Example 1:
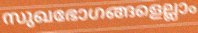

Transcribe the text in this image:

സുഖഭോഗങ്ങളെല്ലാം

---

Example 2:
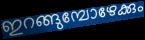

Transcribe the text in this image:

ഇറങ്ങുമ്പോഴേക്കും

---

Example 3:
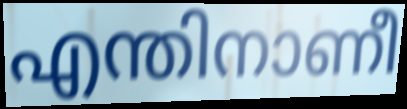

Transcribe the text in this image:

എന്തിനാണീ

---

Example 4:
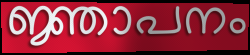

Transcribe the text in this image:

ജ്ഞാപനം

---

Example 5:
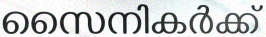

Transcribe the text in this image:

സൈനികർക്ക്